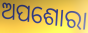
ଅପଶୋରା